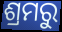
ଶ୍ରମରୁ